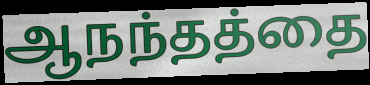
ஆநந்தத்தை